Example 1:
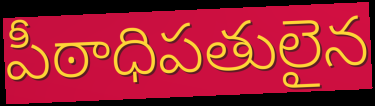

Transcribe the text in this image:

పీఠాధిపతులైన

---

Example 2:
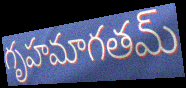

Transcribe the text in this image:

గృహమాగతమ్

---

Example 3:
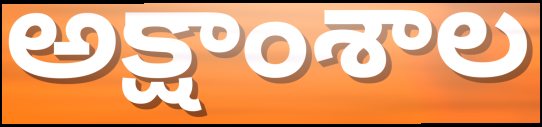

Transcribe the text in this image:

అక్షాంశాల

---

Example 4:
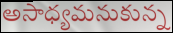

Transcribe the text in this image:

అసాధ్యమనుకున్న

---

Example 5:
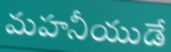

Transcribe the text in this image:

మహనీయుడే